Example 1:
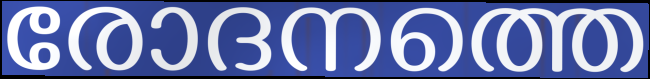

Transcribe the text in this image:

രോദനത്തെ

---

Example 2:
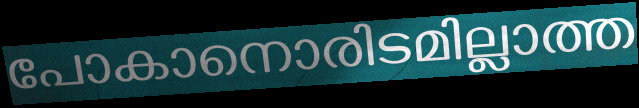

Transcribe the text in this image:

പോകാനൊരിടമില്ലാത്ത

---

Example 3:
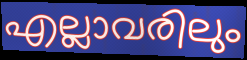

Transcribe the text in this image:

എല്ലാവരിലും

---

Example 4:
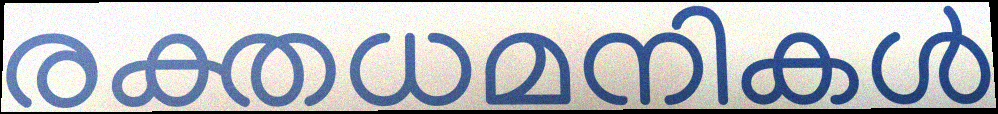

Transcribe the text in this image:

രക്തധമനികൾ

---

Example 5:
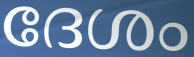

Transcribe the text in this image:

ദേശം